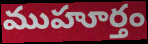
ముహూర్తం